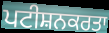
ਪਟੀਸ਼ਨਕਰਤਾ